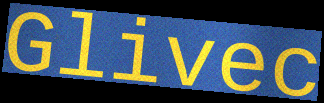
Glivec